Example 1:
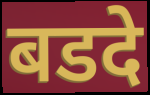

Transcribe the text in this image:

बडदे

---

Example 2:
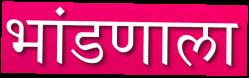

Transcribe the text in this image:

भांडणाला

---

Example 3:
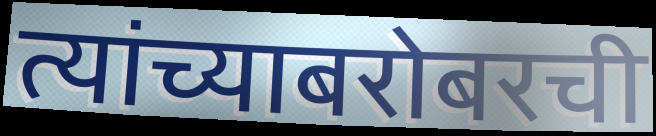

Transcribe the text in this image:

त्यांच्याबरोबरची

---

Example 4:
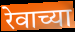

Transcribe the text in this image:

रेवाच्या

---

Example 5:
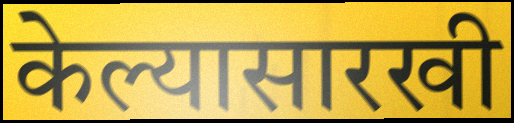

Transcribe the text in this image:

केल्यासारखी